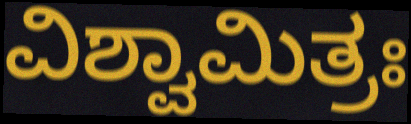
ವಿಶ್ವಾಮಿತ್ರಃ